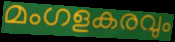
മംഗളകരവും